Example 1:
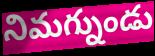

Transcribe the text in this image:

నిమగ్నుండు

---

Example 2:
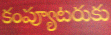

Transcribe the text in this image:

కంప్యూటరుకు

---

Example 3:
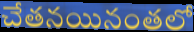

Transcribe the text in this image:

చేతనయినంతలో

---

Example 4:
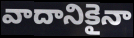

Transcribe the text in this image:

వాదానికైనా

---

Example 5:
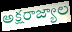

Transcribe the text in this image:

అక్షరాజ్యాల